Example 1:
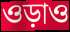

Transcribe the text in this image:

ওড়াও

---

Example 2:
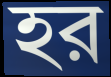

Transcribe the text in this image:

হর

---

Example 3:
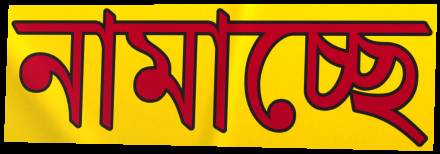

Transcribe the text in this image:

নামাচ্ছে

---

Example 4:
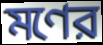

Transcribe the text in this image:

মণের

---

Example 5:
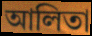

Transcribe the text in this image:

আলিতা